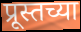
प्रूस्तच्या